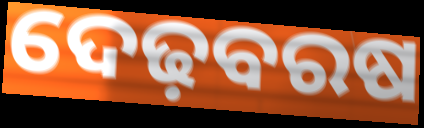
ଦେଢ଼ବରଷ